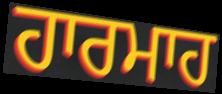
ਹਾਰਮਾਹ